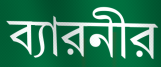
ব্যারনীর